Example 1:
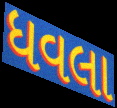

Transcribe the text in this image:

ધવલા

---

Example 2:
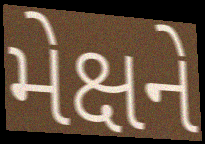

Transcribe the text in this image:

મેક્ષને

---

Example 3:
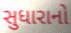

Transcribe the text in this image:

સુધારાનો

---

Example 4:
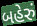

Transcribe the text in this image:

બહેરું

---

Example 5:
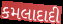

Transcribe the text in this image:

કમલાદાદી